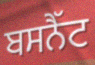
ਬਸਨੈੱਟ